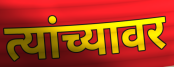
त्यांच्यावर